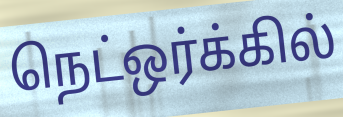
நெட்ஒர்க்கில்